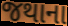
જથાના